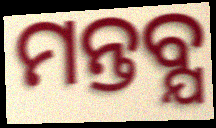
ମନ୍ତବ୍ଯ